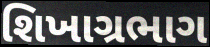
શિખાગ્રભાગ